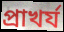
প্রাখর্য